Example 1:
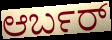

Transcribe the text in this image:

ಆರ್ಬರ್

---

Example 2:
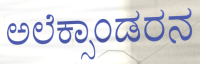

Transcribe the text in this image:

ಅಲೆಕ್ಸಾಂಡರನ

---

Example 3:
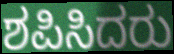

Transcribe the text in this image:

ಶಪಿಸಿದರು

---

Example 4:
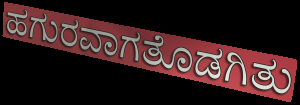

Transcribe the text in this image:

ಹಗುರವಾಗತೊಡಗಿತು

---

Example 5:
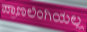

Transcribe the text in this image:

ಪ್ರಾಣಲಿಂಗಿಯಲ್ಲ